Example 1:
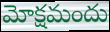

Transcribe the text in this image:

మోక్షమందు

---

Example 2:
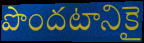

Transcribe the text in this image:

పొందటానికై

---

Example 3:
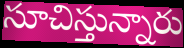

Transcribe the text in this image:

సూచిస్తున్నారు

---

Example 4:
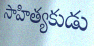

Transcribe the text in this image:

సాహిత్యకుడు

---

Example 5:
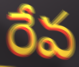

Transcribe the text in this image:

రేవ